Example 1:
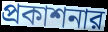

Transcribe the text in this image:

প্রকাশনার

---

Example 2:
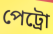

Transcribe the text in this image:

পেট্রো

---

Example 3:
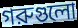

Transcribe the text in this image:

গরুগুলো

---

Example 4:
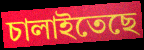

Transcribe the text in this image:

চালাইতেছে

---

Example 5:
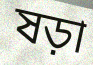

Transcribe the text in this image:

ষড়া